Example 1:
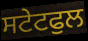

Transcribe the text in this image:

ਸਟੇਟਫੁਲ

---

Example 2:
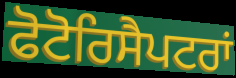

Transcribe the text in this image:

ਫੋਟੋਰਿਸੈਪਟਰਾਂ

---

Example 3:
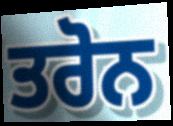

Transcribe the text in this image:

ਤਰੋਨ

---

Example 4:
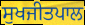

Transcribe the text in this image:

ਸੁਖਜੀਤਪਾਲ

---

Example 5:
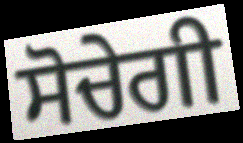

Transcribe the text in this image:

ਸੋਚੇਗੀ